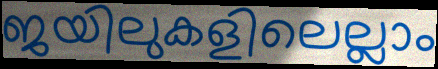
ജയിലുകളിലെല്ലാം